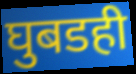
घुबडही